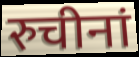
रुचीनां